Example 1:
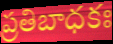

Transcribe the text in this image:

ప్రతిబాధకః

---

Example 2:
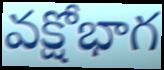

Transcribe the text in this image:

వక్షోభాగ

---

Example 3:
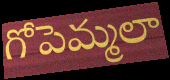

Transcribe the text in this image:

గోపెమ్మలా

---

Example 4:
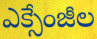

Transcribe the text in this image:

ఎక్సేంజీల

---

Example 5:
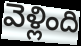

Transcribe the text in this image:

వెళ్లింది